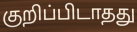
குறிப்பிடாதது